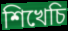
শিখেচি